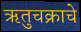
ऋतुचक्राचे